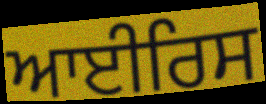
ਆਈਰਿਸ